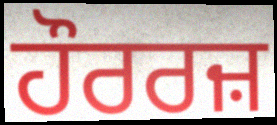
ਹੌਰਰਜ਼